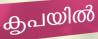
കൃപയിൽ